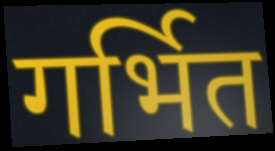
गर्भित